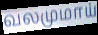
வலமுமாய்